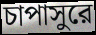
চাপাসুরে